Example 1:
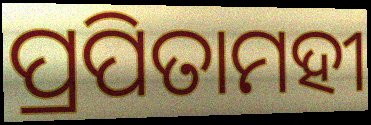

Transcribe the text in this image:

ପ୍ରପିତାମହୀ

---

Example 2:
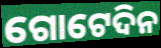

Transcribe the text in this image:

ଗୋଟେଦିନ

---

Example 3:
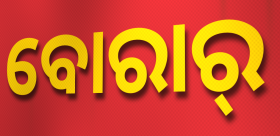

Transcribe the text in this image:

ବୋରାର୍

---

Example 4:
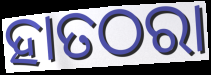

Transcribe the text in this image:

ହାତଠରା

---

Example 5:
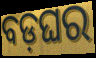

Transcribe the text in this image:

ବଡ଼ଘର